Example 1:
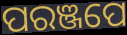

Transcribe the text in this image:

ପରଞ୍ଜପେ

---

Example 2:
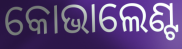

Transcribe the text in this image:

କୋଭାଲେଣ୍ଟ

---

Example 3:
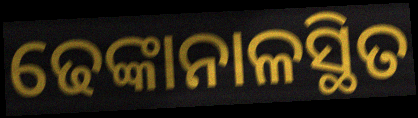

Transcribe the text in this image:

ଢେଙ୍କାନାଳସ୍ଥିତ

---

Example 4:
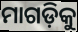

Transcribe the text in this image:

ମାଗଡ଼ିକୁ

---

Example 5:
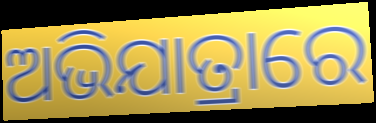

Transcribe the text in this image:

ଅଭିଯାତ୍ରାରେ